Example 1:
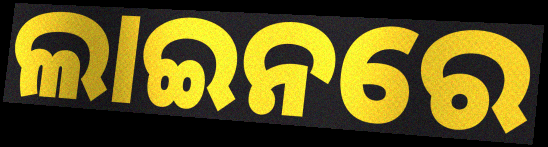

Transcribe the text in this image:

ଲାଇନରେ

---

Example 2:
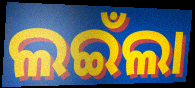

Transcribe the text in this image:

ଲଇଁଲା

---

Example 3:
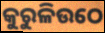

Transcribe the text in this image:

କୁରୁଳିଉଠେ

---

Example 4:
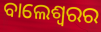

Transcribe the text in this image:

ବାଲେଶ୍ୱରର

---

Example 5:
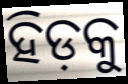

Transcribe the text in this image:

ହିଡ଼କୁ